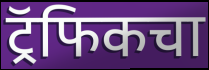
ट्रॅफिकचा